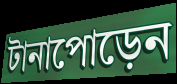
টানাপোড়েন